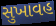
સુખાવહ